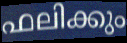
ഫലിക്കും